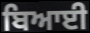
ਬਿਆਈ